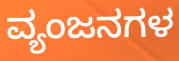
ವ್ಯಂಜನಗಳ